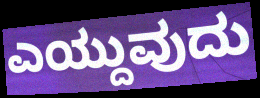
ಎಯ್ದುವುದು